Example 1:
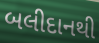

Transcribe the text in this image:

બલીદાનથી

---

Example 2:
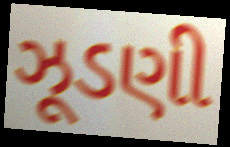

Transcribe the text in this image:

ઝૂડણી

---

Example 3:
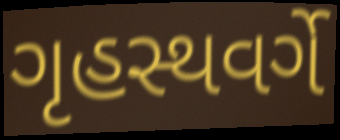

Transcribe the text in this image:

ગૃહસ્થવર્ગે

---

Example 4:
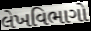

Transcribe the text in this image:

લેખવિભાગો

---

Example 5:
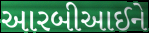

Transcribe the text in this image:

આરબીઆઈને